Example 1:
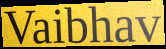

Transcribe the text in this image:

Vaibhav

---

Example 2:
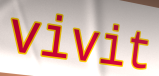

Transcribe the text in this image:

vivit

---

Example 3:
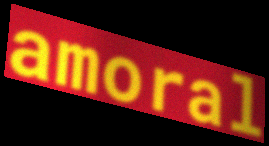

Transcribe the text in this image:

amoral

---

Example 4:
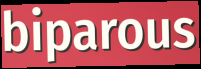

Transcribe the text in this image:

biparous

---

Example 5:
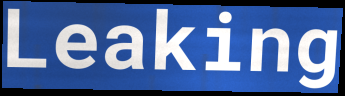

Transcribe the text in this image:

Leaking